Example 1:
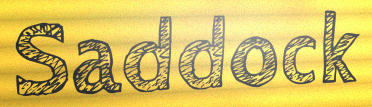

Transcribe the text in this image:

Saddock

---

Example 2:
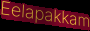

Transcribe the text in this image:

Eelapakkam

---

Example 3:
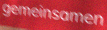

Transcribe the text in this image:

gemeinsamen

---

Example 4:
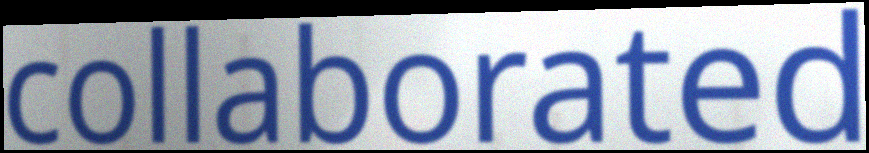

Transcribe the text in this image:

collaborated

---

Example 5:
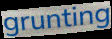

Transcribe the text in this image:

grunting